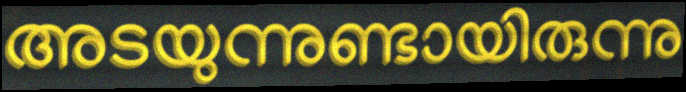
അടയുന്നുണ്ടായിരുന്നു